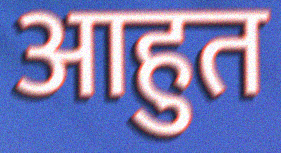
आहुत